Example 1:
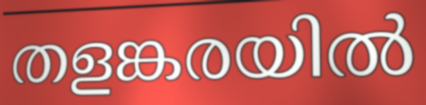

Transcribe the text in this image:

തളങ്കരയിൽ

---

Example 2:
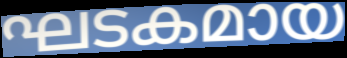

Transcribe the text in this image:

ഘടകമായ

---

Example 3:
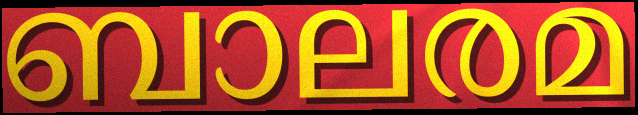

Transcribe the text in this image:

ബാലരമ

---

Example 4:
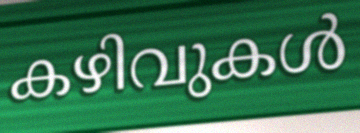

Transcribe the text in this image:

കഴിവുകൾ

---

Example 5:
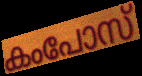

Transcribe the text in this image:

കംപോസ്